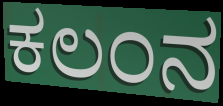
ಕಲಂನ